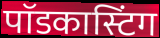
पॉडकास्टिंग